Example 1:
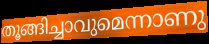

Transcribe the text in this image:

തൂങ്ങിച്ചാവുമെന്നാണു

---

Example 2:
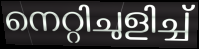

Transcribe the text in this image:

നെറ്റിചുളിച്ച്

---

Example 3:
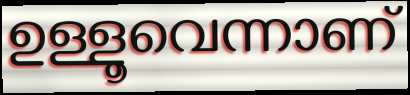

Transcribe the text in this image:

ഉള്ളൂവെന്നാണ്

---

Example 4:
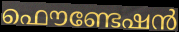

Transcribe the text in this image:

ഫൌണ്ടേഷൻ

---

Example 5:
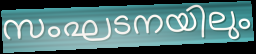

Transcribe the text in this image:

സംഘടനയിലും